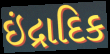
ઇંદ્રાદિક